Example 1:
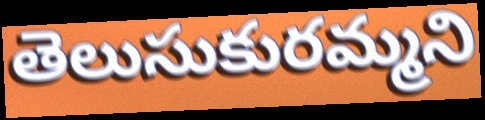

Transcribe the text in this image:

తెలుసుకురమ్మని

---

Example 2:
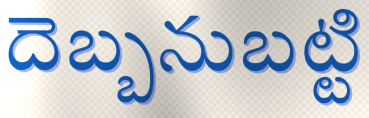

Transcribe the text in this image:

దెబ్బనుబట్టి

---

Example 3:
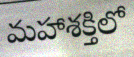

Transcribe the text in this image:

మహాశక్తిలో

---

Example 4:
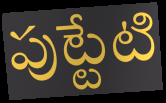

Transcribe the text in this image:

పుట్టేటి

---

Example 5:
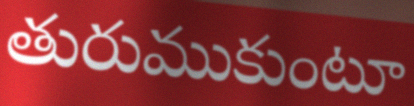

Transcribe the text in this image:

తురుముకుంటూ